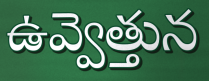
ఉవ్వెత్తున